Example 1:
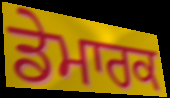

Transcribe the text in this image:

ਡੇਮਾਰਕ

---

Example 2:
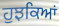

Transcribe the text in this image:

ਹੁਝਕਿਆਂ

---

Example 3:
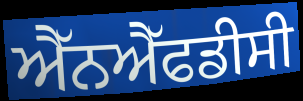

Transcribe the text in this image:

ਐੱਨਐੱਫਡੀਸੀ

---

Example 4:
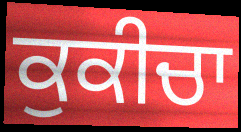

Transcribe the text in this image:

ਕੁਕੀਚਾ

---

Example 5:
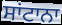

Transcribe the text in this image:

ਸਾਂਟਾਨਾ